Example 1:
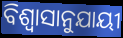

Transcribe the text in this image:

ବିଶ୍ୱାସାନୁଯାୟୀ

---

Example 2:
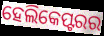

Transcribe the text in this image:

ହେଲିକେପ୍ଟରର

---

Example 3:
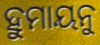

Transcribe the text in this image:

ହୁମାୟନୁ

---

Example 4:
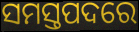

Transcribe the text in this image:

ସମସ୍ତପଦରେ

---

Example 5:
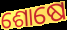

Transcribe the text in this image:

ଶୋଷେ